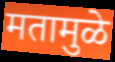
मतामुळे